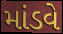
માંડવે